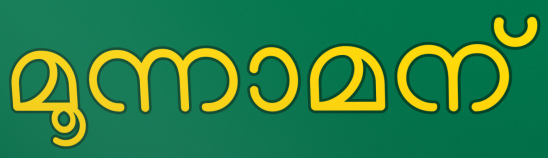
മൂന്നാമന്